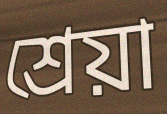
শ্ৰেয়া